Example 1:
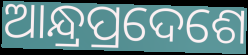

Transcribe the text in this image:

ଆନ୍ଧ୍ରପ୍ରଦେଶେ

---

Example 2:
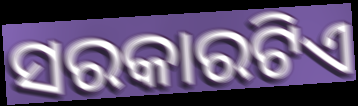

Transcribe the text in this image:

ସରକାରଟିଏ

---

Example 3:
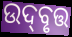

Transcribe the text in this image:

ଉଦ୍‌ବୃତ୍ତ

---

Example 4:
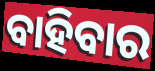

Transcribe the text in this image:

ବାହିବାର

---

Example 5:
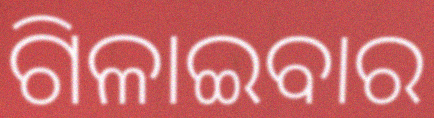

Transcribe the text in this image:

ଗିଳାଇବାର